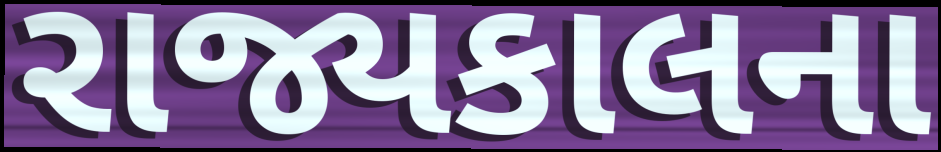
રાજ્યકાલના